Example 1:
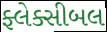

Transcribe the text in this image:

ફ્લેક્સીબલ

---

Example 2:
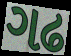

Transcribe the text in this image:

ગઢ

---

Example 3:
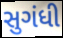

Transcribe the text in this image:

સુગંધી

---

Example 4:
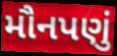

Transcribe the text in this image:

મૌનપણું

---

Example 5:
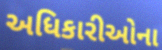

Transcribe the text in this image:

અધિકારીઓના